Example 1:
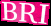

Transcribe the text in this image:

BRI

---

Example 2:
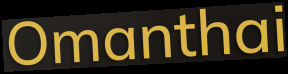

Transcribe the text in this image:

Omanthai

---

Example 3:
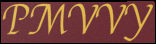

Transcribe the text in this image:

PMVVY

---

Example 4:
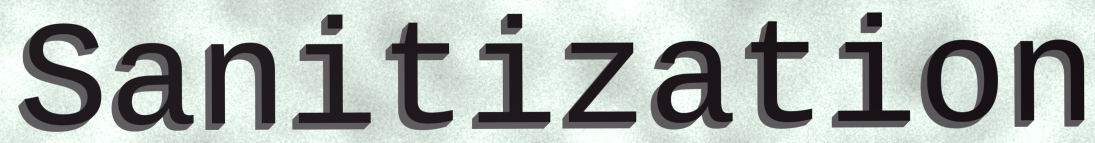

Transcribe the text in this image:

Sanitization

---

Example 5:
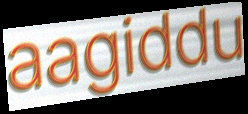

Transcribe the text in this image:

aagiddu